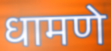
धामणे